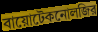
বায়োটেকনোলজির